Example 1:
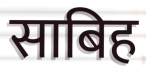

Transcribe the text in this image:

साबिह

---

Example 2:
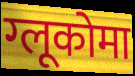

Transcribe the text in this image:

ग्‍लूकोमा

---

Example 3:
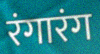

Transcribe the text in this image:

रंगारंग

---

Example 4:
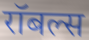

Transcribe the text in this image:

रॉबल्स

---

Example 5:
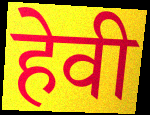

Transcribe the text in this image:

हेवी